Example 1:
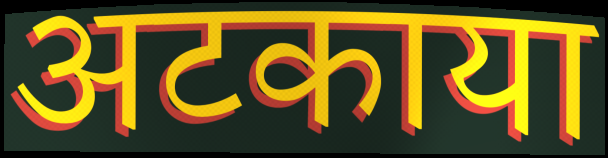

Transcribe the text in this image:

अटकाया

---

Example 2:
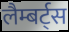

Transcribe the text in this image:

लैम्बर्ट्स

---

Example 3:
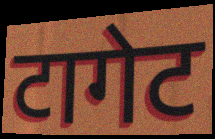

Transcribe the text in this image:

टागेट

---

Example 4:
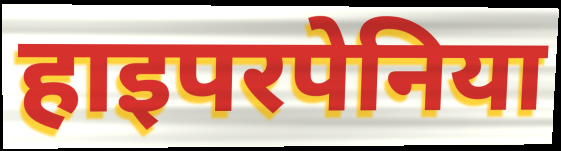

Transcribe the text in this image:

हाइपरपेनिया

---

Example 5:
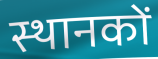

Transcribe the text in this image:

स्थानकों